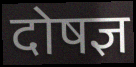
दोषज्ञ